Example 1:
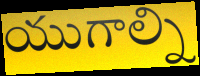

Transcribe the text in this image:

యుగాల్ని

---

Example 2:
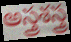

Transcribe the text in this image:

అస్త్రశస్త్ర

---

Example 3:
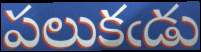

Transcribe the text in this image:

పలుకఁడు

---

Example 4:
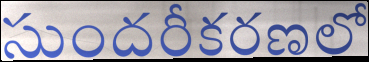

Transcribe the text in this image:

సుందరీకరణలో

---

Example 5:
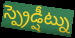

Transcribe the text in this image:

స్ప్రెడ్షీట్ను